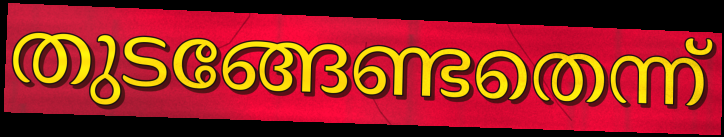
തുടങ്ങേണ്ടതെന്ന്